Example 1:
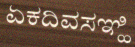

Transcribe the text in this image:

ಏಕದಿವಸಞ್ಹಿ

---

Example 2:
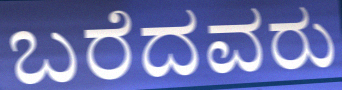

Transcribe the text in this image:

ಬರೆದವರು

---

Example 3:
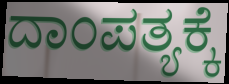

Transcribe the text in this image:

ದಾಂಪತ್ಯಕ್ಕೆ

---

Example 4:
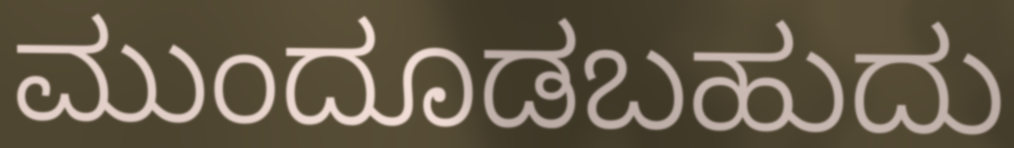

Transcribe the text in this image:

ಮುಂದೂಡಬಹುದು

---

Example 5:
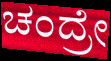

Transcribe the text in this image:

ಚಂದ್ರೇ